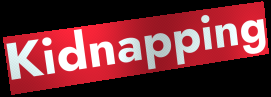
Kidnapping